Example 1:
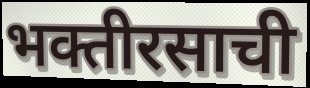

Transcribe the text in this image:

भक्तीरसाची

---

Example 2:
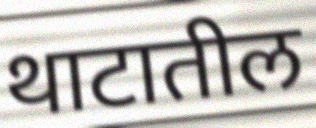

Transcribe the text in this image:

थाटातील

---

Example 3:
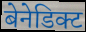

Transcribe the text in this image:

बेनेडिक्ट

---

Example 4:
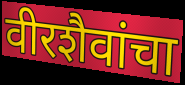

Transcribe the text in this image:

वीरशैवांचा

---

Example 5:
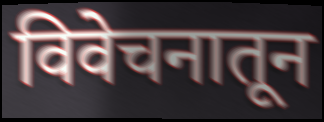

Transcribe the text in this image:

विवेचनातून